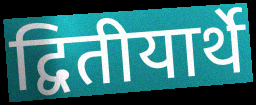
द्वितीयार्थे